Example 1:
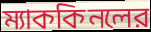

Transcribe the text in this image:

ম্যাককিনলের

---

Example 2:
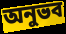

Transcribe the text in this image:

অনুভব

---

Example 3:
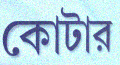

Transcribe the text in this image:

কোটার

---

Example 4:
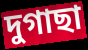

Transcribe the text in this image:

দুগাছা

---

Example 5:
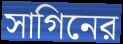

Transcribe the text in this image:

সাগিনের